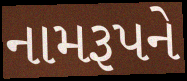
નામરૂપને